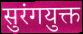
सुरंगयुक्त